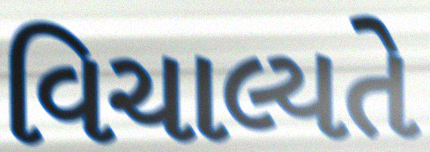
વિચાલ્યતે